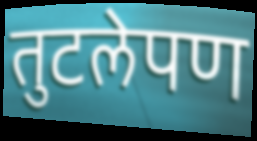
तुटलेपण